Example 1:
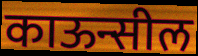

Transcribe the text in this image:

काऊन्सील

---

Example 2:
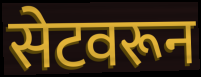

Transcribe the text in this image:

सेटवरून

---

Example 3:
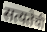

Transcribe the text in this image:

सत्यतेची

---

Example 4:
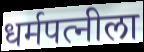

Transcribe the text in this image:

धर्मपत्नीला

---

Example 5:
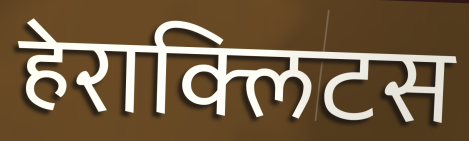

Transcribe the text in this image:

हेराक्लिटस